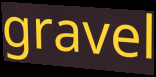
gravel